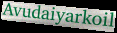
Avudaiyarkoil